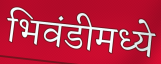
भिवंडीमध्ये